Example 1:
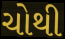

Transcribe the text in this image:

ચોથી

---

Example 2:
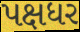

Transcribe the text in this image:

પક્ષધર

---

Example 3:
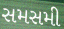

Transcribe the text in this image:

સમસમી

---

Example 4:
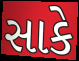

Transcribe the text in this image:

સાકે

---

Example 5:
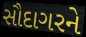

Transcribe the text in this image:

સૌદાગરને